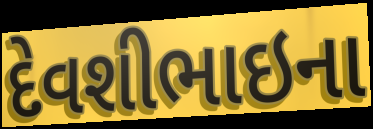
દેવશીભાઇના